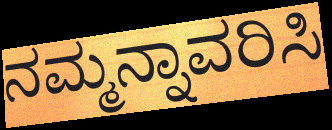
ನಮ್ಮನ್ನಾವರಿಸಿ